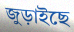
জুড়াইছে